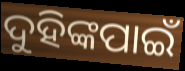
ଦୁହିଙ୍କପାଇଁ